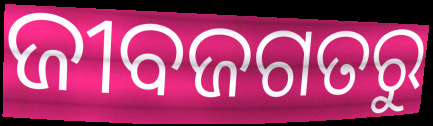
ଜୀବଜଗତରୁ